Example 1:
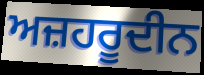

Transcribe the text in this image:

ਅਜ਼ਹਰੂਦੀਨ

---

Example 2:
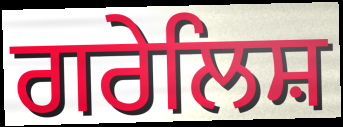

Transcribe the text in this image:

ਗਰੇਲਿਸ਼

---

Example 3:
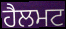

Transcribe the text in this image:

ਹੈਲਮਟ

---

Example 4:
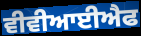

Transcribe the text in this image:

ਵੀਵੀਆਈਐਫ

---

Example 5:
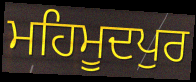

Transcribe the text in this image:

ਮਹਿਮੂਦਪੁਰ